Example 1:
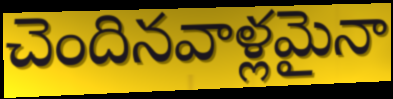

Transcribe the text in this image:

చెందినవాళ్లమైనా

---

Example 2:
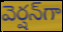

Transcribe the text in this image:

వెర్షన్‌గా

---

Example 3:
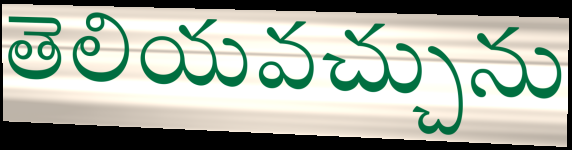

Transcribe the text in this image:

తెలియవచ్చును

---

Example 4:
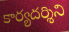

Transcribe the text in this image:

కార్యదర్శిని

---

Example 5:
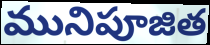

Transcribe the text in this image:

మునిపూజిత